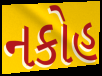
નકોહ